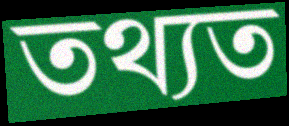
তথ্যত